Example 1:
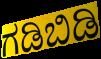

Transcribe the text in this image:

ಗಡಿಬಿಡಿ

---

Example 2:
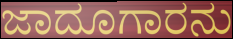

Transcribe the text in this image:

ಜಾದೂಗಾರನು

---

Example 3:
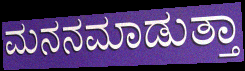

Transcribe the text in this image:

ಮನನಮಾಡುತ್ತಾ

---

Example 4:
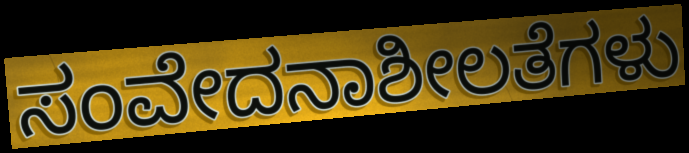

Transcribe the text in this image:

ಸಂವೇದನಾಶೀಲತೆಗಳು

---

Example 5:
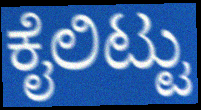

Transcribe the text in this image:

ಕೈಲಿಟ್ಟು